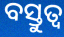
ବସ୍ତୁତ୍ବ